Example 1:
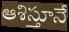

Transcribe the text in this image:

ఆశిస్తూనే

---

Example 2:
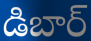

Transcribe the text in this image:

డిబార్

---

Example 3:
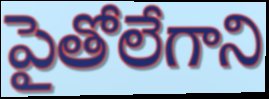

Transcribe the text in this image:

పైతోలేగాని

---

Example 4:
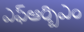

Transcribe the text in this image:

ఎఫ్ఆర్బిఎం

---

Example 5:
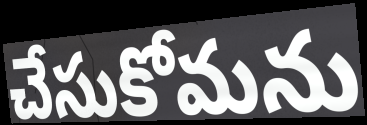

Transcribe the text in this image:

చేసుకోమను